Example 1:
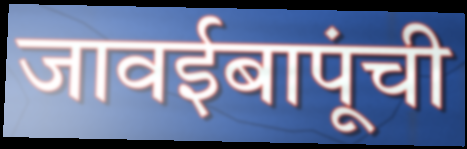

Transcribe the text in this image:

जावईबापूंची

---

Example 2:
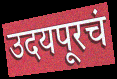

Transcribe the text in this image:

उदयपूरचं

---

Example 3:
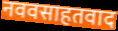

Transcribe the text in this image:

नववसाहतवाद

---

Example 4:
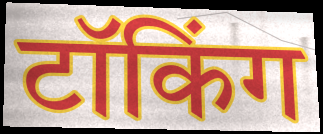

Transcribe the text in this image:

टॉकिंग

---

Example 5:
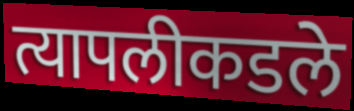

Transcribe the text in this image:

त्यापलीकडले